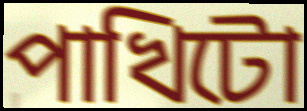
পাখিটো